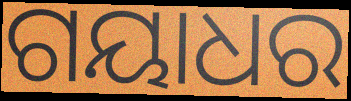
ଗୟାଧର